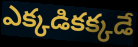
ఎక్కడికక్కడే